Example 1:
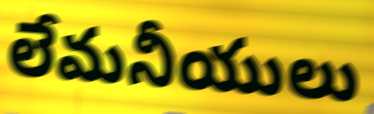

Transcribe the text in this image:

లేమనీయులు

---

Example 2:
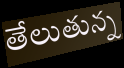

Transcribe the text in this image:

తేలుతున్న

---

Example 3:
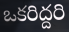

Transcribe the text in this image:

ఒకరిద్దరి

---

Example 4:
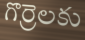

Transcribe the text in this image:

గొర్రెలకు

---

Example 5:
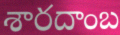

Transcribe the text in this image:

శారదాంబ